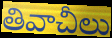
తివాచీలు